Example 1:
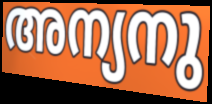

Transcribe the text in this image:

അന്യനു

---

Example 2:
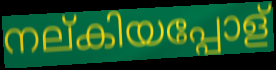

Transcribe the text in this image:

നല്കിയപ്പോള്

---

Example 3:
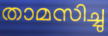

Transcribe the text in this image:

താമസിച്ചു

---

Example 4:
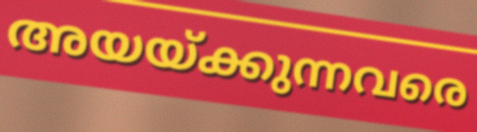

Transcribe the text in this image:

അയയ്ക്കുന്നവരെ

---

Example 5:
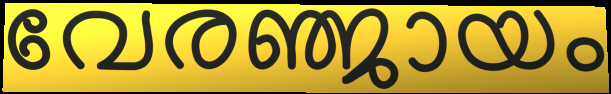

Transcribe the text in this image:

വേരഞ്ജായം